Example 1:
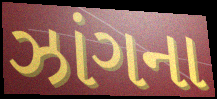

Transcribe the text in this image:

ઝાંગના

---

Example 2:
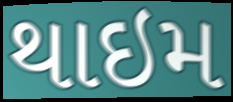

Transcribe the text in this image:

થાઇમ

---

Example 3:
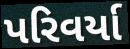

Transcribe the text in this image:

પરિવર્યા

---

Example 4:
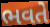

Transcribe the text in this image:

ભવતે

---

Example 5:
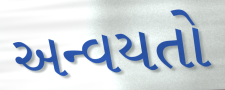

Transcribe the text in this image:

અન્વયતો